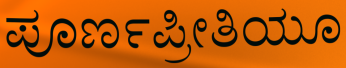
ಪೂರ್ಣಪ್ರೀತಿಯೂ